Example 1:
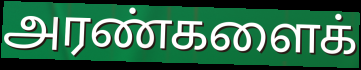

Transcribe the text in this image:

அரண்களைக்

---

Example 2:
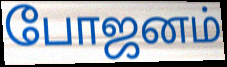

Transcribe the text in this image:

போஜனம்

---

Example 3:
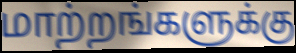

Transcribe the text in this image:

மாற்றங்களுக்கு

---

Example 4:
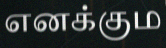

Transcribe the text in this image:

எனக்கும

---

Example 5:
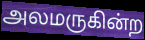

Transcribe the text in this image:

அலமருகின்ற